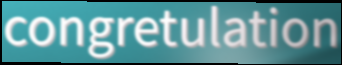
congretulation